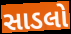
સાડલો